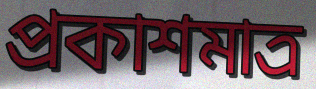
প্রকাশমাত্র